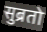
सुब्रतो